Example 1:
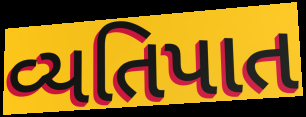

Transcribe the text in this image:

વ્યતિપાત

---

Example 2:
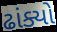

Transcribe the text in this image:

ઢાંક્યો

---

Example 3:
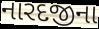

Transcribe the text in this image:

નારદજીના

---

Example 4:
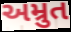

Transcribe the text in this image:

અમ્રુત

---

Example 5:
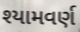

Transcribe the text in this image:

શ્યામવર્ણ